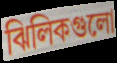
ঝিলিকগুলো